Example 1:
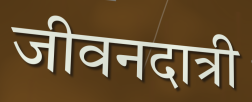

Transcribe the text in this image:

जीवनदात्री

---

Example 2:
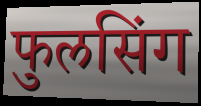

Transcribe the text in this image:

फुलसिंग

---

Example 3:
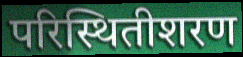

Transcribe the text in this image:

परिस्थितीशरण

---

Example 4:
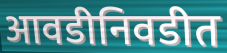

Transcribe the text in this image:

आवडीनिवडीत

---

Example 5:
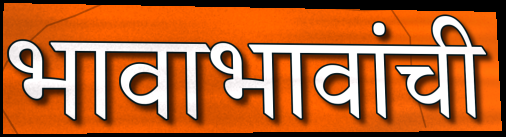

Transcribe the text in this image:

भावाभावांची